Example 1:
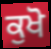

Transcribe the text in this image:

ਕੁਖੋ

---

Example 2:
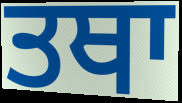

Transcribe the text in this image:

ਤਥਾ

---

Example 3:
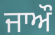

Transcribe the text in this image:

ਜਾਔ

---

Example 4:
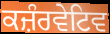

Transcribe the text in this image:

ਕਜ਼ੰਰਵੇਟਿਵ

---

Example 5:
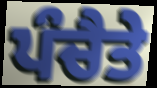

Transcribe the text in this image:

ਪੰਚੈਤੇ